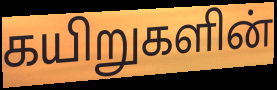
கயிறுகளின்